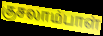
குசலாம்பாள்